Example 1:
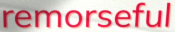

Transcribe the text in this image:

remorseful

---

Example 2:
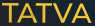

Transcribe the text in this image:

TATVA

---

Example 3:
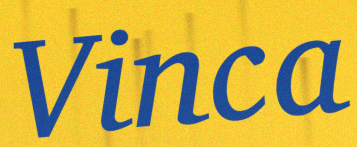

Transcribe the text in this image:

Vinca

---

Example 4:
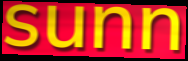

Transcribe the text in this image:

sunn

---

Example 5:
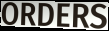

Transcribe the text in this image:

ORDERS